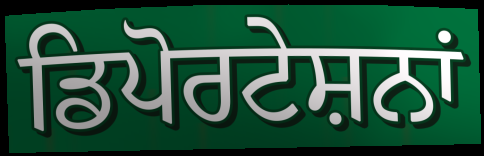
ਡਿਪੋਰਟੇਸ਼ਨਾਂ